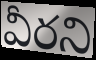
వీరని